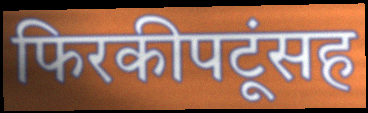
फिरकीपटूंसह